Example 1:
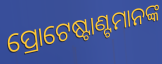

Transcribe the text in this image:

ପ୍ରୋଟେଷ୍ଟାଣ୍ଟମାନଙ୍କ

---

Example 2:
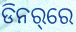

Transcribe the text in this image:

ଡିନର୍‌ରେ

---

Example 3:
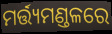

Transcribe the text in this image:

ମର୍ତ୍ତ୍ୟମଣ୍ଡଳରେ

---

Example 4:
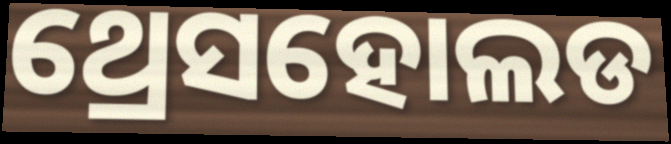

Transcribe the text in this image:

ଥ୍ରେସହୋଲଡ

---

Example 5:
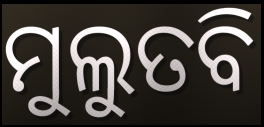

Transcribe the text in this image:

ମୁଲୁତବି